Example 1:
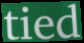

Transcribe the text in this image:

tied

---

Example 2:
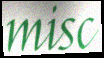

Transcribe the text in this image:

misc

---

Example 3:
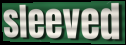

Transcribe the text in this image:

sleeved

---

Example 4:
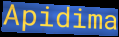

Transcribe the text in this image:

Apidima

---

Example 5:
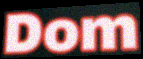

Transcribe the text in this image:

Dom